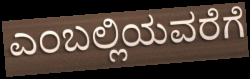
ಎಂಬಲ್ಲಿಯವರೆಗೆ